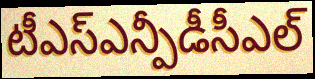
టీఎస్ఎన్పీడీసీఎల్